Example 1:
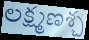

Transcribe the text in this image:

లక్ష్మణశ్చ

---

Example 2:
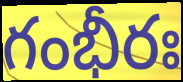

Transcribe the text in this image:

గంభీరః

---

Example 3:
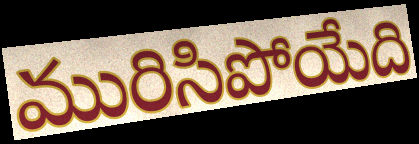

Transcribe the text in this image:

మురిసిపోయేది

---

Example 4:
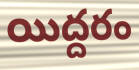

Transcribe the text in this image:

యిద్దరం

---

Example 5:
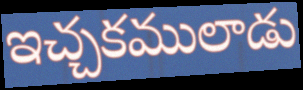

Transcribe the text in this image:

ఇచ్చకములాడు